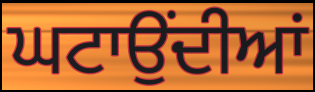
ਘਟਾਉਂਦੀਆਂ